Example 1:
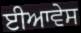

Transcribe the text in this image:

ਈਆਵੇਸ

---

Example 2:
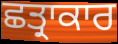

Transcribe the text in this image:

ਛਤ੍ਰਾਕਾਰ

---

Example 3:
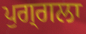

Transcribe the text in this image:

ਪੁਗ੍ਗਲਾ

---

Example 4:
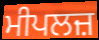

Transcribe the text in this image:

ਮੀਪਲਜ਼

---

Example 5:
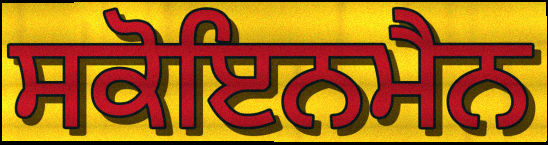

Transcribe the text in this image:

ਸਕੋਇਨਮੈਨ